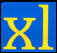
xl